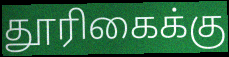
தூரிகைக்கு